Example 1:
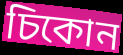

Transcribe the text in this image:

চিকোন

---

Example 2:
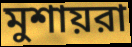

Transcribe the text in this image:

মুশায়রা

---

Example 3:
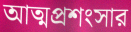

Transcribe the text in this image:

আত্মপ্রশংসার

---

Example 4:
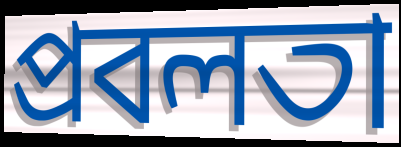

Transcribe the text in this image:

প্রবলতা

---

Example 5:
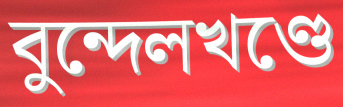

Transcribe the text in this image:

বুন্দেলখণ্ডে